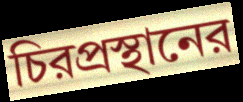
চিরপ্রস্থানের